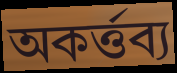
অকর্ত্তব্য